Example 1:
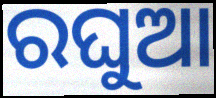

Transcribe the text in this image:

ରଘୁଆ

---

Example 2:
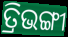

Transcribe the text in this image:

ତ୍ରିଭଙ୍ଗୀ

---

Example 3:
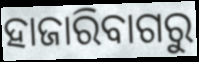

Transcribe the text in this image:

ହାଜାରିବାଗରୁ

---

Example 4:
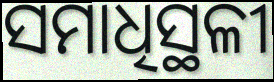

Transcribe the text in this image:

ସମାଧିସ୍ଥଳୀ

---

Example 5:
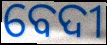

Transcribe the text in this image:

ବେଦୀ